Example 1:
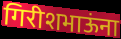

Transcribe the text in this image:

गिरीशभाऊंना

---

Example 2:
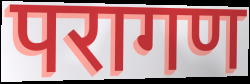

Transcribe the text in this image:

परागण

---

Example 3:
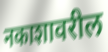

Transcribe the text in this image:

नकाशावरील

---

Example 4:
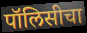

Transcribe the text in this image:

पॉलिसीचा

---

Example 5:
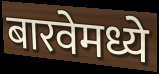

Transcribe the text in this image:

बारवेमध्ये